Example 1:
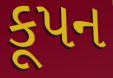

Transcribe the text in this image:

કૂપન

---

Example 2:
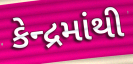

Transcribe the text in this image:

કેન્દ્રમાંથી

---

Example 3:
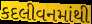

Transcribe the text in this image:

કદલીવનમાંથી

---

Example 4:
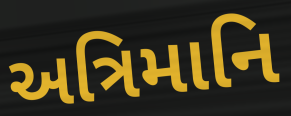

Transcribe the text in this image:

અત્રિમાનિ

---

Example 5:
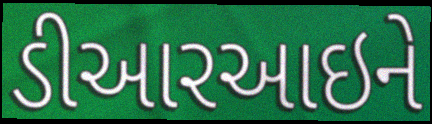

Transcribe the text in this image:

ડીઆરઆઇને